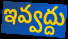
ఇవ్వద్దు